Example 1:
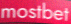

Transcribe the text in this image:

mostbet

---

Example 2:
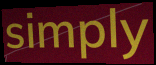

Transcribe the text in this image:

simply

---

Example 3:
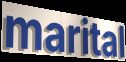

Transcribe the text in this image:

marital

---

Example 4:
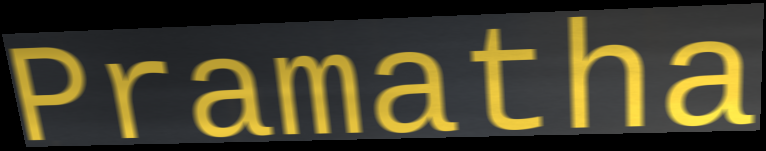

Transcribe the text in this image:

Pramatha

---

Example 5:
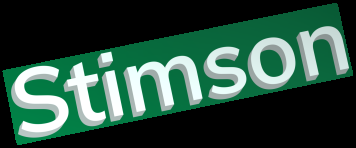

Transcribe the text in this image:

Stimson